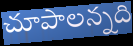
చూపాలన్నది